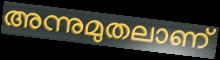
അന്നുമുതലാണ്